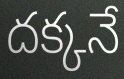
దక్కనే